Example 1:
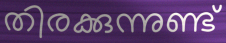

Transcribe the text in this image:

തിരക്കുന്നുണ്ട്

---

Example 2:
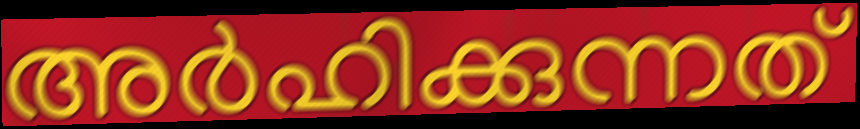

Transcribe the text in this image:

അർഹിക്കുന്നത്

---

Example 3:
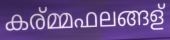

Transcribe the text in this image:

കര്മ്മഫലങ്ങള്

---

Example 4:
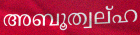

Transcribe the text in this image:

അബൂത്വല്ഹ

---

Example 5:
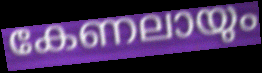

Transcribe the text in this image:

കേണലായും